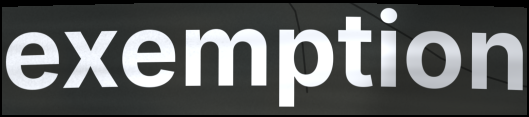
exemption